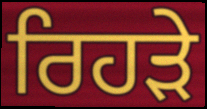
ਰਿਹੜੇ